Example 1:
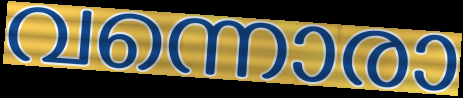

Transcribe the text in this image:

വന്നൊരാ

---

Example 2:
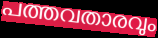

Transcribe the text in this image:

പത്തവതാരവും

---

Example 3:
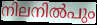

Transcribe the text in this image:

നിലനിൽപും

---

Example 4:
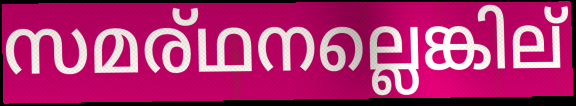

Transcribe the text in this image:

സമര്ഥനല്ലെങ്കില്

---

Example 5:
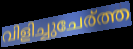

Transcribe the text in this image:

വിളിച്ചുചേര്ത്ത